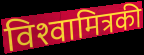
विश्वामित्रकी